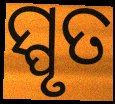
ସ୍ପୃତ